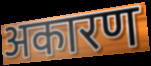
अकारण